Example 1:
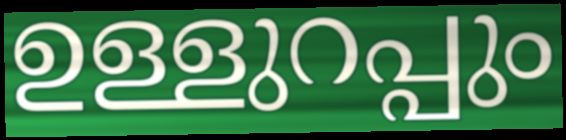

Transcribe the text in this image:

ഉള്ളുറപ്പും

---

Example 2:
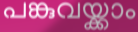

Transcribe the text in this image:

പങ്കുവയ്ക്കാം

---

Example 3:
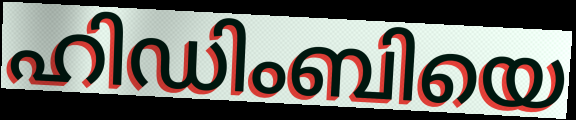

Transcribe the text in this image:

ഹിഡിംബിയെ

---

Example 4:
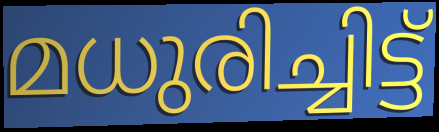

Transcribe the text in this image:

മധുരിച്ചിട്ട്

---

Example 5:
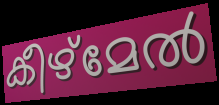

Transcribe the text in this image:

കീഴ്മേൽ